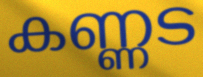
കണ്ണട